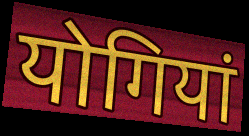
योगियां